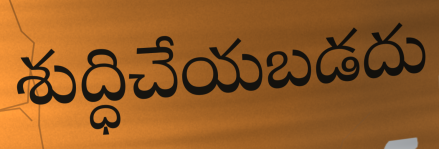
శుద్ధిచేయబడదు